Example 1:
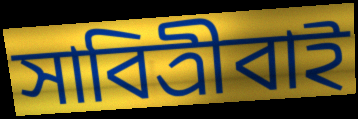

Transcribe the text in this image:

সাবিত্ৰীবাই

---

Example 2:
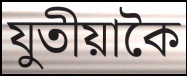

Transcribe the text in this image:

যুতীয়াকৈ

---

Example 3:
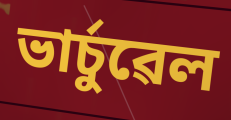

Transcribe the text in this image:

ভাৰ্চুৱেল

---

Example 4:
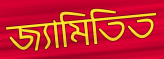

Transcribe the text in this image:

জ্যামিতিত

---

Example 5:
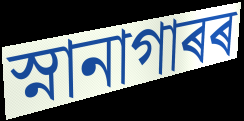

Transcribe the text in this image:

স্নানাগাৰৰ